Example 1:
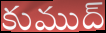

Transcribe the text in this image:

కుముద్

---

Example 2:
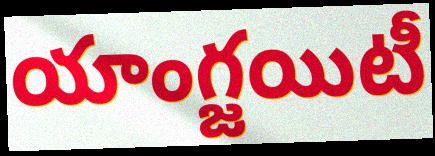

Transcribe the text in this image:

యాంగ్జయిటీ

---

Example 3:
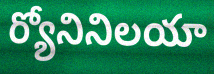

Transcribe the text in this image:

ర్యోనినిలయా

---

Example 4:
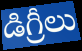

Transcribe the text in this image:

డిగ్రీలు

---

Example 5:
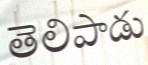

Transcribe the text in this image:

తెలిపాడు